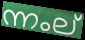
ന്നംല്